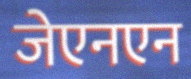
जेएनएन